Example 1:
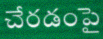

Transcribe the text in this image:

చేరడంపై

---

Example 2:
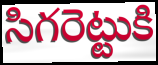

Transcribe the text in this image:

సిగరెట్టుకి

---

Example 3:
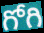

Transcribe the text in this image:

గోగి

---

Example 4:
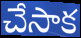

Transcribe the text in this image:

చేసాక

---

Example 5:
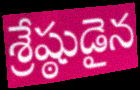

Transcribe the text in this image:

శ్రేష్ఠుడైన